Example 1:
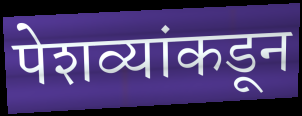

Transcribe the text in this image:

पेशव्यांकडून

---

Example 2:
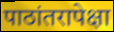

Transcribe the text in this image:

पाठांतरापेक्षा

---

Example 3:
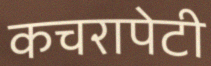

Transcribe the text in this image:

कचरापेटी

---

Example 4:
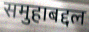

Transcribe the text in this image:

समुहाबद्दल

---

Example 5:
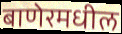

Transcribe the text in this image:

बाणेरमधील